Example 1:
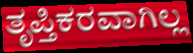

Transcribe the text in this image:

ತೃಪ್ತಿಕರವಾಗಿಲ್ಲ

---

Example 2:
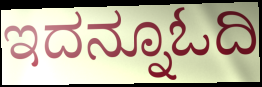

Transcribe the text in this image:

ಇದನ್ನೂಓದಿ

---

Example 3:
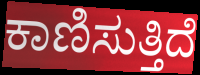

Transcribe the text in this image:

ಕಾಣಿಸುತ್ತಿದೆ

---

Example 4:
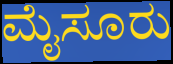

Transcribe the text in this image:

ಮೈಸೂರು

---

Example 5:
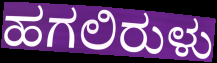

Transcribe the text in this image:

ಹಗಲಿರುಳು